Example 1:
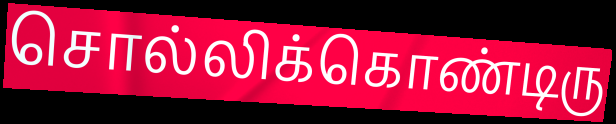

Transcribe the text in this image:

சொல்லிக்கொண்டிரு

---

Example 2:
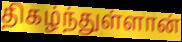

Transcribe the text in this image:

திகழ்ந்துள்ளான்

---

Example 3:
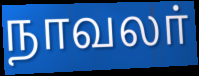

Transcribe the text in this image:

நாவலர்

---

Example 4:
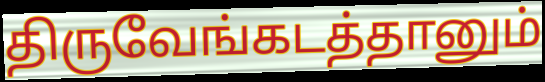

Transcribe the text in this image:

திருவேங்கடத்தானும்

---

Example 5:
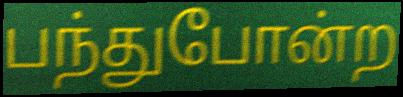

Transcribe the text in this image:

பந்துபோன்ற